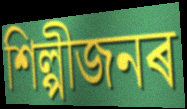
শিল্পীজনৰ